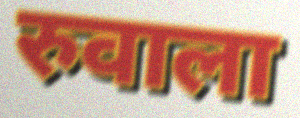
रुवाला